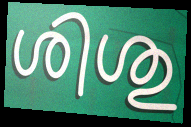
ശിശു